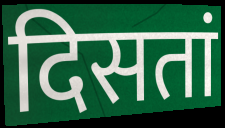
दिसतां